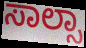
ಸಾಲ್ಸಾ